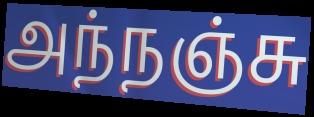
அந்நஞ்சு